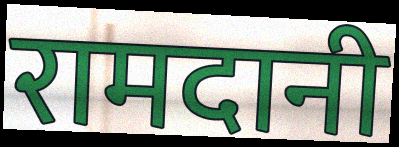
रामदानी